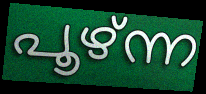
പൂഴ്ന്ന